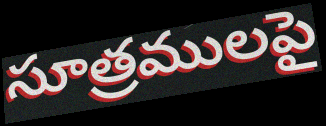
సూత్రములపై